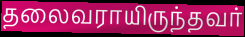
தலைவராயிருந்தவர்